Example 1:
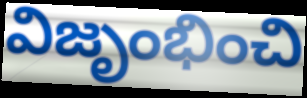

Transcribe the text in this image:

విజృంభించి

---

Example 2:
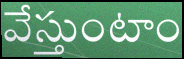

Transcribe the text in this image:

వేస్తుంటాం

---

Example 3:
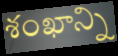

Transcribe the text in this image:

శంఖాన్ని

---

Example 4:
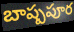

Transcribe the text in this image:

బాష్పపూర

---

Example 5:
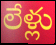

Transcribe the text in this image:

లేళ్లు